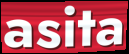
asita